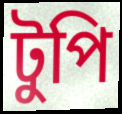
টুপি